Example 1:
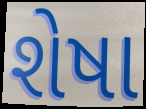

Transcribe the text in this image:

શેષા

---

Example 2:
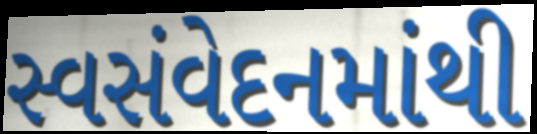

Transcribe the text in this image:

સ્વસંવેદનમાંથી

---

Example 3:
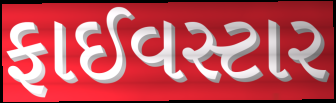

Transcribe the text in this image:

ફાઈવસ્ટાર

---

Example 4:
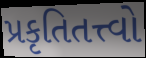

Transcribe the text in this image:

પ્રકૃતિતત્ત્વો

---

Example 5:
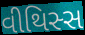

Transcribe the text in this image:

વીથિસ્સ